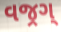
વજ્રગ્